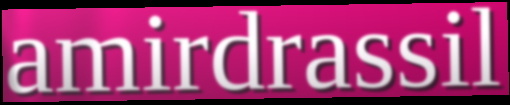
amirdrassil